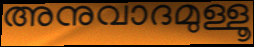
അനുവാദമുള്ളൂ